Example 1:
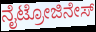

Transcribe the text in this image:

ನೈಟ್ರೋಜಿನೇಸ್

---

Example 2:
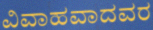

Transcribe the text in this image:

ವಿವಾಹವಾದವರ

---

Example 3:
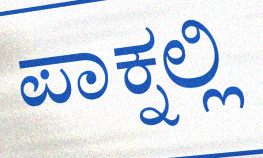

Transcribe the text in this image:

ಪಾಕ್ನಲ್ಲಿ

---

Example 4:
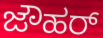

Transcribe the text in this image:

ಜೌಹರ್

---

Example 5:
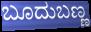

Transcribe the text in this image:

ಬೂದುಬಣ್ಣ